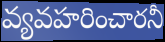
వ్యవహరించారనీ